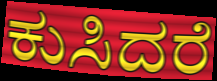
ಕುಸಿದರೆ